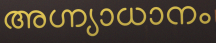
അഗ്ന്യാധാനം